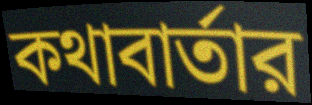
কথাবার্তার